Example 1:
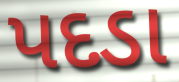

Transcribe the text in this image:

પદડા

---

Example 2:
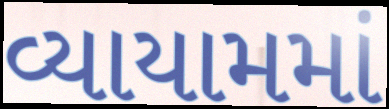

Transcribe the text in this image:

વ્યાયામમાં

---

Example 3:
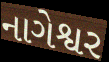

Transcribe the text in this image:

નાગેશ્વર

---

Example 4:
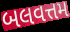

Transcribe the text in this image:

બલવત્તમ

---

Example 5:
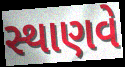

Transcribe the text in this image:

સ્થાણવે